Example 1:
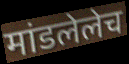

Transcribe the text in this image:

मांडलेलेच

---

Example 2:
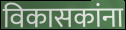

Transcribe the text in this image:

विकासकांना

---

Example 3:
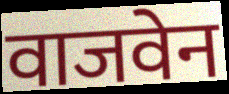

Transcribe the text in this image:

वाजवेन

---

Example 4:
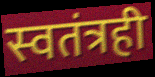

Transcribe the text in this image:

स्वतंत्रही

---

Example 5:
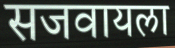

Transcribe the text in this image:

सजवायला